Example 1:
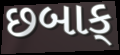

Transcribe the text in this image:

છબાક્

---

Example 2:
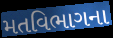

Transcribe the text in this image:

મતવિભાગના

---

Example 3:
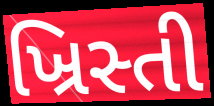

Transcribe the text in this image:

ખ્રિસ્તી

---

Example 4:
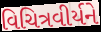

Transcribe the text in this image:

વિચિત્રવીર્યને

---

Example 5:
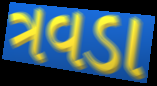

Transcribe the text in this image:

ત્રવડા